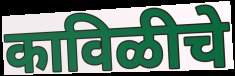
काविळीचे